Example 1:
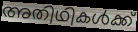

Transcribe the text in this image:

അതിഥികൾക്ക്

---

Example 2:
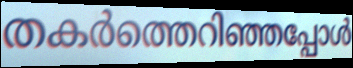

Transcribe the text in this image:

തകർത്തെറിഞ്ഞപ്പോൾ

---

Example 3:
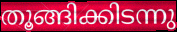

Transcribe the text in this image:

തൂങ്ങിക്കിടന്നു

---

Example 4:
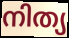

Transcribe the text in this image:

നിത്യ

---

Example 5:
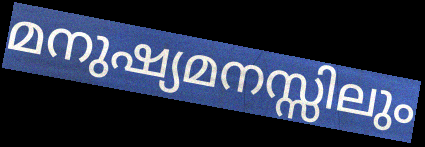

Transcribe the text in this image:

മനുഷ്യമനസ്സിലും